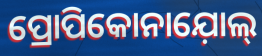
ପ୍ରୋପିକୋନାଯ଼ୋଲ୍